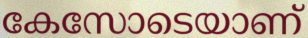
കേസോടെയാണ്